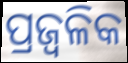
ପ୍ରଜ୍ଵଳିକ